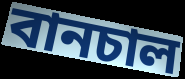
বানচাল